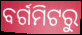
ବର୍ଗମିଟରୁ